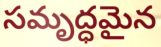
సమృద్ధమైన